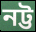
নট্ট